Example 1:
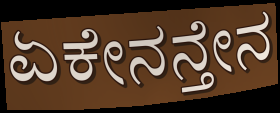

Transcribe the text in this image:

ಏಕೇನನ್ತೇನ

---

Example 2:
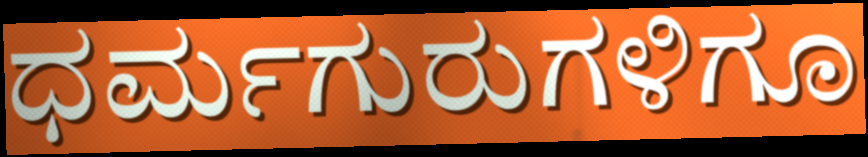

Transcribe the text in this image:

ಧರ್ಮಗುರುಗಳಿಗೂ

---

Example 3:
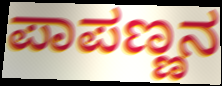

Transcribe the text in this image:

ಪಾಪಣ್ಣನ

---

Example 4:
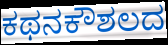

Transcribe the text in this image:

ಕಥನಕೌಶಲದ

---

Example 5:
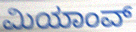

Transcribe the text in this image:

ಮಿಯಾಂವ್